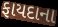
ફાયદાના